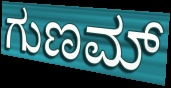
ಗುಣಮ್